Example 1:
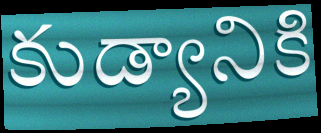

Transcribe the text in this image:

కుడ్యానికి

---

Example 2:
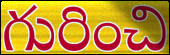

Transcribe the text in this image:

గురించి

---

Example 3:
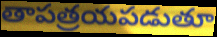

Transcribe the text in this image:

తాపత్రయపడుతూ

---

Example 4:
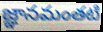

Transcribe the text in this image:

జ్ఞానమంతటి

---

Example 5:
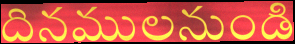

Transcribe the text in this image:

దినములనుండి